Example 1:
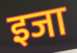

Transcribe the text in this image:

इजा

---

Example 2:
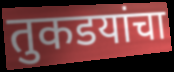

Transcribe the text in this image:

तुकडयांचा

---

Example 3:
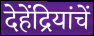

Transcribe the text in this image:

देहेंद्रियांचें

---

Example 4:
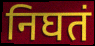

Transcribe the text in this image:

निघतं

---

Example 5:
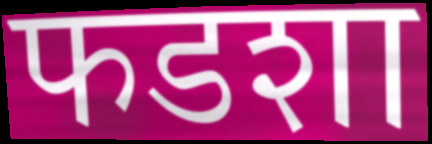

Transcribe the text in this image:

फडशा